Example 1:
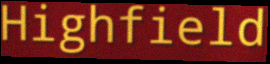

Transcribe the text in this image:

Highfield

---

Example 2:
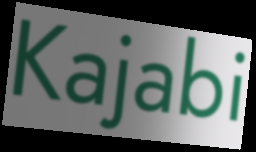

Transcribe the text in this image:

Kajabi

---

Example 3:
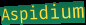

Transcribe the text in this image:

Aspidium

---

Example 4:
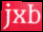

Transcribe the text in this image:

jxb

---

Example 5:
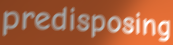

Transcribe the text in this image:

predisposing